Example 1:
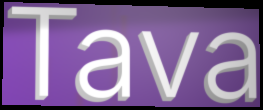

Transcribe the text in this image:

Tava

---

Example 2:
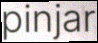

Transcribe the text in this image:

pinjar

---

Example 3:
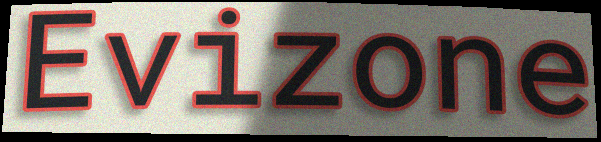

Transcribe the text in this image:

Evizone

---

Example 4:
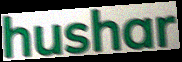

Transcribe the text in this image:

hushar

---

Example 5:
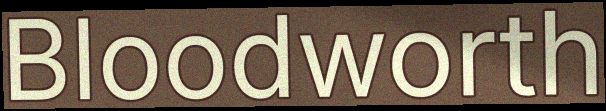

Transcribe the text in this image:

Bloodworth